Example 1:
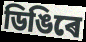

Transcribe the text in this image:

ডিঙিৰে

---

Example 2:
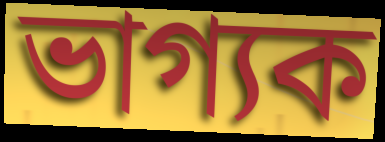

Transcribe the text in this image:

ভাগ্যক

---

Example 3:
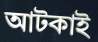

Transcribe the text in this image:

আটকাই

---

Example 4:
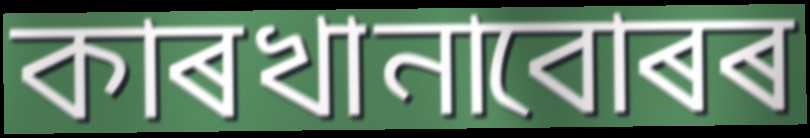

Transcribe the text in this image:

কাৰখানাবোৰৰ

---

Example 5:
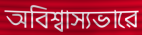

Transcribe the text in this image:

অবিশ্বাস্যভাৱে